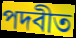
পদবীত